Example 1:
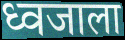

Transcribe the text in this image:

ध्वजाला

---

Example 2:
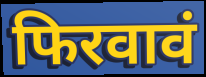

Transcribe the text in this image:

फिरवावं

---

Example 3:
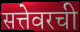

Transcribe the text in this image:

सत्तेवरची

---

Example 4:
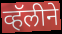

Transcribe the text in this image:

व्हॅलीने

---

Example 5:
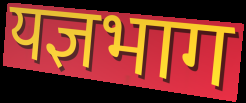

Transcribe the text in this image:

यज्ञभाग